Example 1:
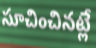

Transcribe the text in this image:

సూచించినట్లే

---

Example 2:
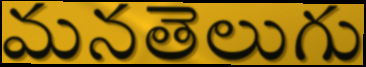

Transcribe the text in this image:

మనతెలుగు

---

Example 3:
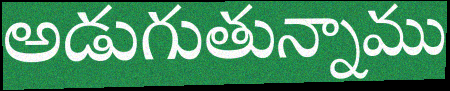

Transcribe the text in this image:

అడుగుతున్నాము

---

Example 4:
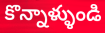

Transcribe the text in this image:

కొన్నాళ్ళుండి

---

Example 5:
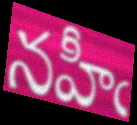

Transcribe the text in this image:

నహీఁ